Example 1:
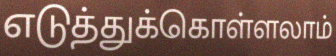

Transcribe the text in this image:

எடுத்துக்கொள்ளலாம்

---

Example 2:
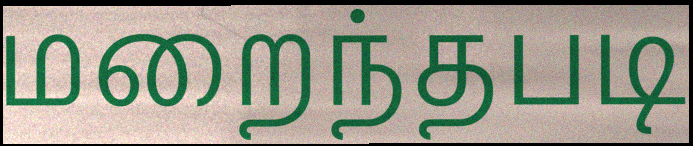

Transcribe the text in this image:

மறைந்தபடி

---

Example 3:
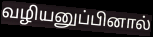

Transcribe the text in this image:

வழியனுப்பினால்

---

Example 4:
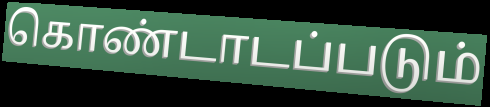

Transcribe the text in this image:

கொண்டாடப்படும்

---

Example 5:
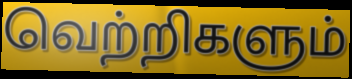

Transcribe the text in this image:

வெற்றிகளும்